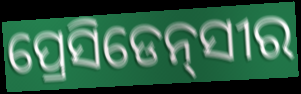
ପ୍ରେସିଡେନ୍‌ସୀର